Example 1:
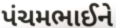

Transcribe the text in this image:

પંચમભાઈને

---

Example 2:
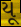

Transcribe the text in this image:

યૂ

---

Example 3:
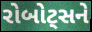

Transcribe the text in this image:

રોબોટ્સને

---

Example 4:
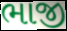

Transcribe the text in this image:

ભાજી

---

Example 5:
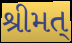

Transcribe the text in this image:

શ્રીમત્